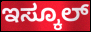
ಇಸ್ಕೂಲ್